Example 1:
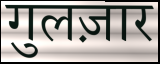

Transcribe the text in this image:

गुलज़ार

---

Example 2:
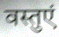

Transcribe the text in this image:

वस्तुएं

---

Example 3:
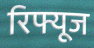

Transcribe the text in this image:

रिफ्यूज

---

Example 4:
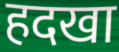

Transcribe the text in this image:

हदखा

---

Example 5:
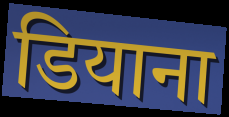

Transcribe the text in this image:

डियाना